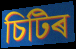
চিটিৰ